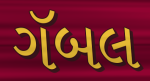
ગૅબલ